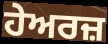
ਹੇਅਰਜ਼